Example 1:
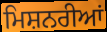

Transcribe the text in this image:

ਮਿਸ਼ਨਰੀਆਂ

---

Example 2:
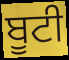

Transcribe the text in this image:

ਬੂਟੀ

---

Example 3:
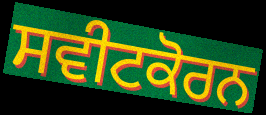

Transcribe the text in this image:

ਸਵੀਟਕੋਰਨ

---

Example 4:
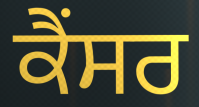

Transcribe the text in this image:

ਕੈਂਸਰ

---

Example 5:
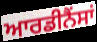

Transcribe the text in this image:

ਆਰਡੀਨੈਂਸਾਂ